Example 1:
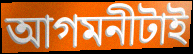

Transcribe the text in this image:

আগমনীটাই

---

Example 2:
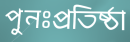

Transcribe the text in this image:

পুনঃপ্রতিষ্ঠা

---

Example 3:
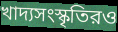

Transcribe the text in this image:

খাদ্যসংস্কৃতিরও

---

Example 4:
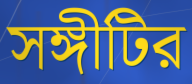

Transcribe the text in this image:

সঙ্গীটির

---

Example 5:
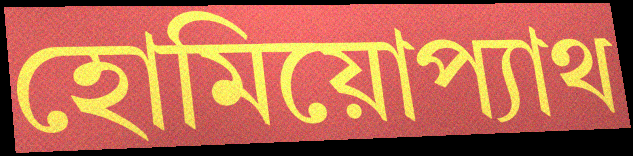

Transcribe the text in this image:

হোমিয়োপ্যাথ